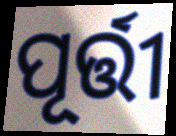
ପୂର୍ତ୍ତୀ